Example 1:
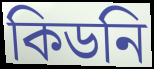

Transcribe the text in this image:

কিডনি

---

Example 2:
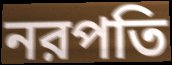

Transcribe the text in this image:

নরপতি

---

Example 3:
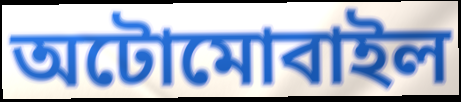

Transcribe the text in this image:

অটোমোবাইল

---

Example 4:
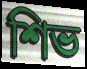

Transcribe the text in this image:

শিভ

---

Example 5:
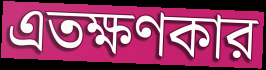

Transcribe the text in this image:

এতক্ষণকার